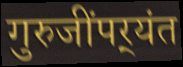
गुरुजींपर्यंत